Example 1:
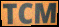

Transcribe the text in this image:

TCM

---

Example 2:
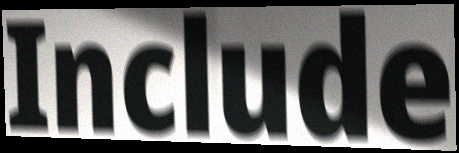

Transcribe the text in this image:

Include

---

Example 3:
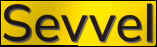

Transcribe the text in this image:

Sevvel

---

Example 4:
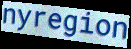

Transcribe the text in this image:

nyregion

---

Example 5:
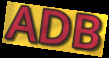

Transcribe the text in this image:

ADB